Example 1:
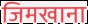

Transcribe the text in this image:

जिमखाना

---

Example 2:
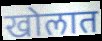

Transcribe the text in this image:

खोलात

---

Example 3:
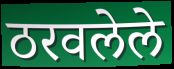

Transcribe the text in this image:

ठरवलेले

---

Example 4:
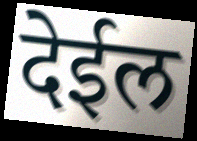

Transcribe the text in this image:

देईल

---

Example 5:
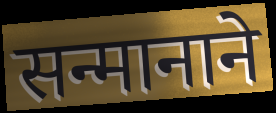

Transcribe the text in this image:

सन्मानाने